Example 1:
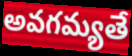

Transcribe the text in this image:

అవగమ్యతే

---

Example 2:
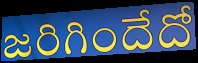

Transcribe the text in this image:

జరిగిందేదో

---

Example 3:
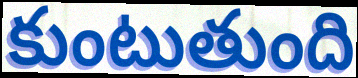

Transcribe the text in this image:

కుంటుతుంది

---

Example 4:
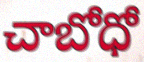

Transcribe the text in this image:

చాబోధో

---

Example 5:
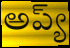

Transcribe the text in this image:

అప్య్